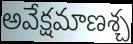
అవేక్షమాణశ్చ